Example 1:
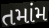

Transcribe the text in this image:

તમાંમ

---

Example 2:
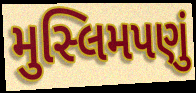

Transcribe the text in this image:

મુસ્લિમપણું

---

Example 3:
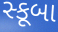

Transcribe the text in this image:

સ્કૂબા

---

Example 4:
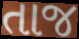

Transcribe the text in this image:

તાજ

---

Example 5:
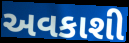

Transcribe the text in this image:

અવકાશી